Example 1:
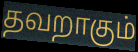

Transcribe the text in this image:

தவறாகும்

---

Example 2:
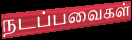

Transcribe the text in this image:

நடப்பவைகள்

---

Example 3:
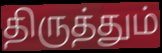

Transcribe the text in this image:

திருத்தும்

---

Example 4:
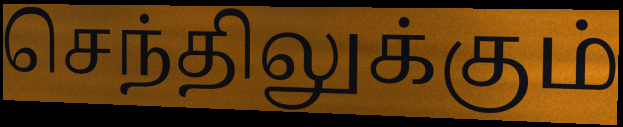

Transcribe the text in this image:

செந்திலுக்கும்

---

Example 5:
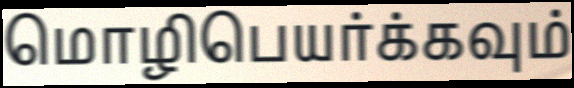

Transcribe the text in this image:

மொழிபெயர்க்கவும்